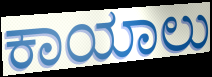
ಕಾಯಾಲು